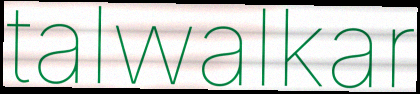
talwalkar